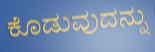
ಕೊಡುವುದನ್ನು